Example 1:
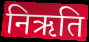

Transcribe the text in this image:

निऋति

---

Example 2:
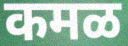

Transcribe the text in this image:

कमळ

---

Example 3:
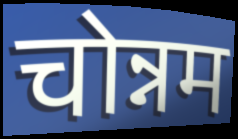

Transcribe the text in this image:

चोन्नम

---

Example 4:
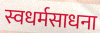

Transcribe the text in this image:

स्वधर्मसाधना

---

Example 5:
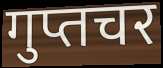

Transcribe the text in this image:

गुप्तचर